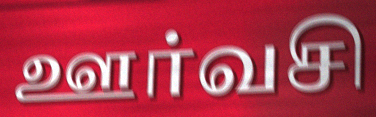
ஊர்வசி